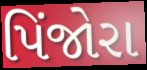
પિંજોરા